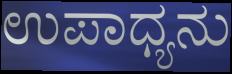
ಉಪಾಧ್ಯನು